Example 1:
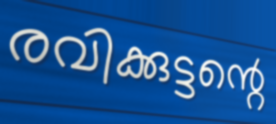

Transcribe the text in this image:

രവിക്കുട്ടന്റെ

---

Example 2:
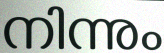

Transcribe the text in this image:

നിന്നും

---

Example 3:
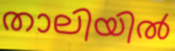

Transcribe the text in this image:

താലിയിൽ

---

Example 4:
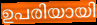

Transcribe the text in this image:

ഉപരിയായി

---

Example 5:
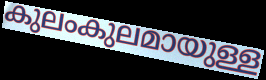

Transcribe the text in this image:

കുലംകുലമായുള്ള